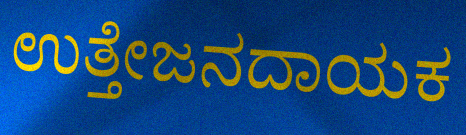
ಉತ್ತೇಜನದಾಯಕ